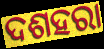
ଦଶହରା